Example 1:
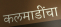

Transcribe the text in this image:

कलमाडींचा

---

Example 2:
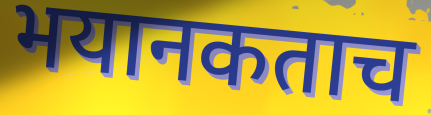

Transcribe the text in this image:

भयानकताच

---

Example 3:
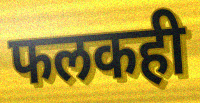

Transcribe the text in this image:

फलकही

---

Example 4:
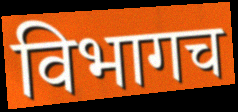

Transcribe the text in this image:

विभागच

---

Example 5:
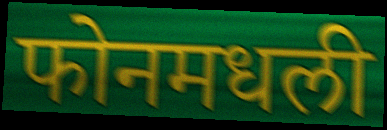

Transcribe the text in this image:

फोनमधली